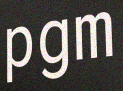
pgm